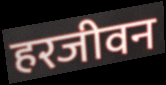
हरजीवन